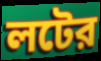
লটের